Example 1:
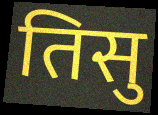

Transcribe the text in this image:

तिसु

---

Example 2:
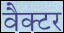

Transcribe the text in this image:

वैक्टर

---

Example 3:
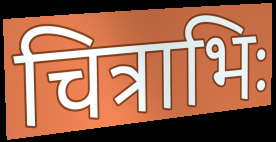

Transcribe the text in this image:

चित्राभिः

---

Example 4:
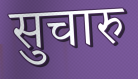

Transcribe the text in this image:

सुचारु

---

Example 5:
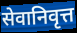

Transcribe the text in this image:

सेवानिवृत्त